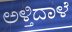
ಅಳ್ತಿದಾಳೆ